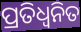
ପ୍ରତିଧ୍ଵନିତ